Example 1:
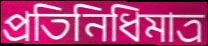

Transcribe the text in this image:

প্রতিনিধিমাত্র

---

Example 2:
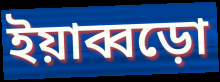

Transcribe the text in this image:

ইয়াব্বড়ো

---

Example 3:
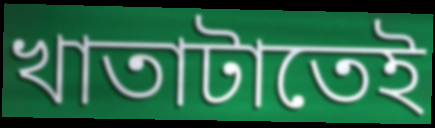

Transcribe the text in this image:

খাতাটাতেই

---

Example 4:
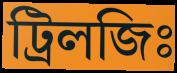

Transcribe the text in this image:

ট্রিলজিঃ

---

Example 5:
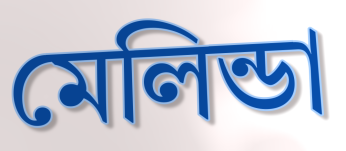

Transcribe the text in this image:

মেলিন্ডা